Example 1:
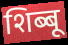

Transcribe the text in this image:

शिब्बू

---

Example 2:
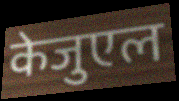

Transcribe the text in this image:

केजुएल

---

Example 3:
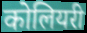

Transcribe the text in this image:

कोलियरी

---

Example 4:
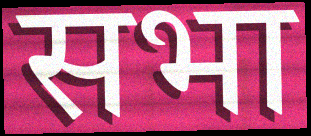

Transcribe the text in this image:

सभा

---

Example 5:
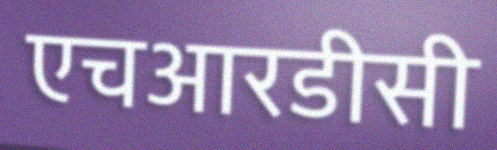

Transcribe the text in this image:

एचआरडीसी